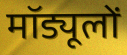
मॉड्यूलों